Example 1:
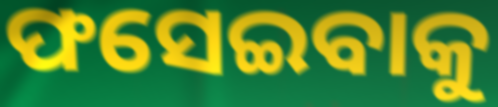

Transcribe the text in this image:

ଫସେଇବାକୁ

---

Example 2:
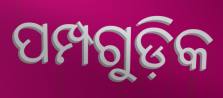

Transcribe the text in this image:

ପମ୍ପଗୁଡ଼ିକ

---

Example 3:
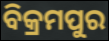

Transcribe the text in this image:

ବିକ୍ରମପୁର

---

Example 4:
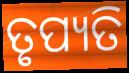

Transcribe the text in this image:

ତୃପ୍ୟତି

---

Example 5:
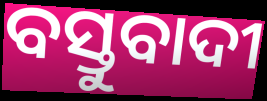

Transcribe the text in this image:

ବସ୍ତୁବାଦୀ